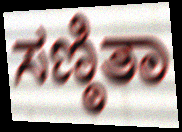
ಸಣ್ಠಿತಾ